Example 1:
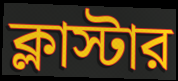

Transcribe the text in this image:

ক্লাস্টার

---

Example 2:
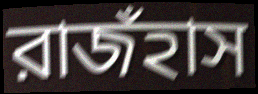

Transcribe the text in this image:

রাজঁহাস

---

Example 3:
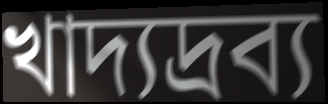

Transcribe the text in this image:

খাদ্যদ্রব্য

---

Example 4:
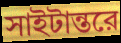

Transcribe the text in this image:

সাইটান্তরে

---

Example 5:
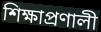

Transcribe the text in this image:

শিক্ষাপ্রণালী